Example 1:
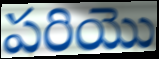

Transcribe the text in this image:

పరియొ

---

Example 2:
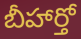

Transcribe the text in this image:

బీహార్తో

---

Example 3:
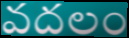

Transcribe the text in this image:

వదలం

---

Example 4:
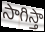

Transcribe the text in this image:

సాగిస్తా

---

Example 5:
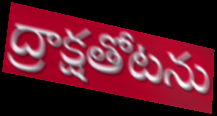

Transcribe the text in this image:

ద్రాక్షతోటను